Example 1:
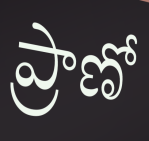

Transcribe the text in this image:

ప్రాణో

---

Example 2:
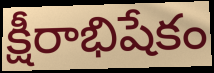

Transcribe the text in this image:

క్షీరాభిషేకం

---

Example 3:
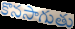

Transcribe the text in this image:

కొనసాగుతు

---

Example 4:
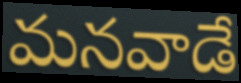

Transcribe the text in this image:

మనవాడే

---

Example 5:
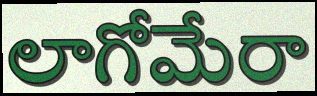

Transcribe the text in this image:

లాగోమేరా